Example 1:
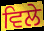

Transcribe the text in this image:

ਵਿਲੇ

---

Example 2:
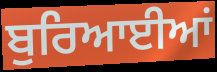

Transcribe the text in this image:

ਬੁਰਿਆਈਆਂ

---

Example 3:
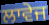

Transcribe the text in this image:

ਲਾਵੇਜ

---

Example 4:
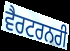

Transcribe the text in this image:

ਵੈਰਟਰਨਰੀ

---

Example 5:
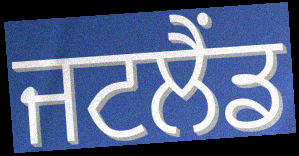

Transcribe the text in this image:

ਜਟਲੈਂਡ